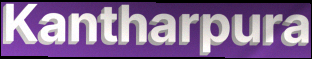
Kantharpura